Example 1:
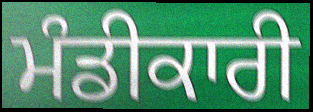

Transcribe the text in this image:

ਮੰਡੀਕਾਰੀ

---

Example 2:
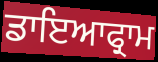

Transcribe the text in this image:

ਡਾਇਆਫ੍ਰਾਮ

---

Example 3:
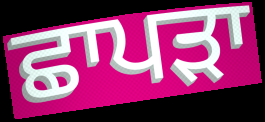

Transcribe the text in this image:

ਛਾਪੜਾ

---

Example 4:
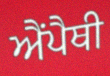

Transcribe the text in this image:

ਐਂਪੈਥੀ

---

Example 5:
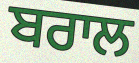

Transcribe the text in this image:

ਬਰਾਲ